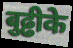
बुढ्ढीके